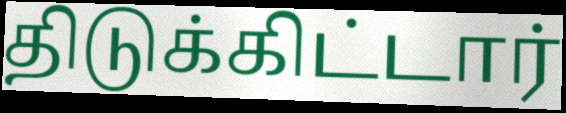
திடுக்கிட்டார்